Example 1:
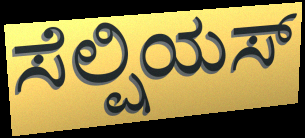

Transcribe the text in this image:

ಸೆಲ್ಷಿಯಸ್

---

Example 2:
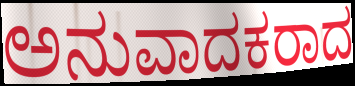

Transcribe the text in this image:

ಅನುವಾದಕರಾದ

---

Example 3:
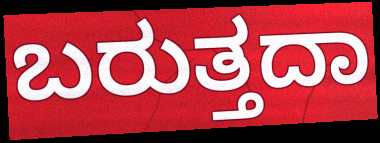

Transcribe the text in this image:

ಬರುತ್ತದಾ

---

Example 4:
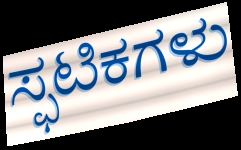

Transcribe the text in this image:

ಸ್ಫಟಿಕಗಳು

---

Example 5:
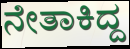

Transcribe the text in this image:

ನೇತಾಕಿದ್ದ